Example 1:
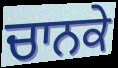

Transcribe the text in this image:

ਚਾਨਕੇ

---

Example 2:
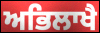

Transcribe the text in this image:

ਅਭਿਲਾਖੈ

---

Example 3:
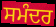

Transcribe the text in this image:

ਸਮੰਦਰ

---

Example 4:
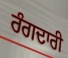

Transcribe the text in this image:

ਰੰਗਦਾਰੀ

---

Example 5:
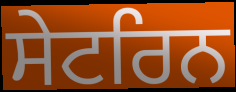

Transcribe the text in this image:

ਸੇਟਰਿਨ